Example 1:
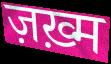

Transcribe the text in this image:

ज़ख़्म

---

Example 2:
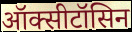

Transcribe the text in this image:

ऑक्सीटॉसिन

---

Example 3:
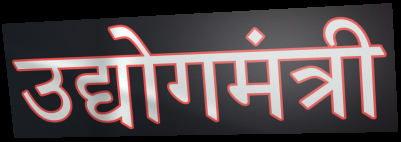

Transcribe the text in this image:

उद्योगमंत्री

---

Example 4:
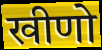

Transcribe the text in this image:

खीणो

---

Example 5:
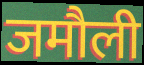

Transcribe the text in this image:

जमौली